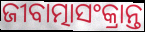
ଜୀବାତ୍ମାସଂକ୍ରାନ୍ତ